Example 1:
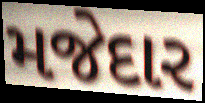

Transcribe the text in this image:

મજેદાર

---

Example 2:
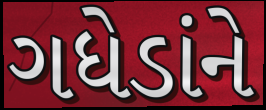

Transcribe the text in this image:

ગધેડાંને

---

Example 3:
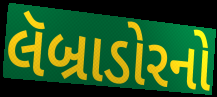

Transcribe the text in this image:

લૅબ્રાડોરનો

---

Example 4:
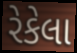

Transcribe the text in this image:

રેકેલા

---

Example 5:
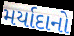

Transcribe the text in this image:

મર્યાદાનો